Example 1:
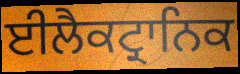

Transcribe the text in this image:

ਈਲੈਕਟ੍ਰਾਨਿਕ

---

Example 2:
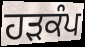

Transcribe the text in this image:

ਹਡ਼ਕੰਪ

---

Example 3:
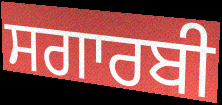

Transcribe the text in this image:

ਸਗਾਰਬੀ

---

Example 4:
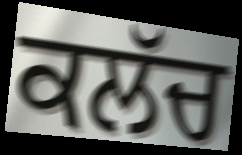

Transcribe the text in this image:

ਕਲੱਚ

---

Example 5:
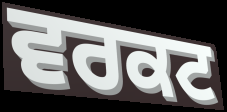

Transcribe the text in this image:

ਵਰਕਟ